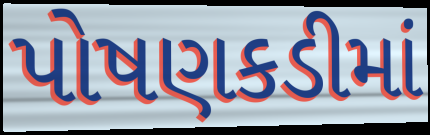
પોષણકડીમાં